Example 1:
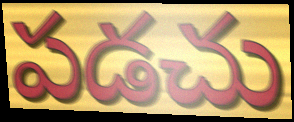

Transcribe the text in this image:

పడచు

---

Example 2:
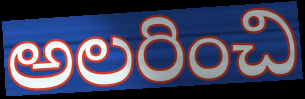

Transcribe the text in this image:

అలరించి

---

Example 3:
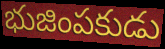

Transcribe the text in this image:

భుజింపకుడు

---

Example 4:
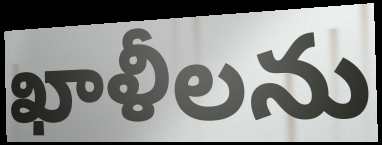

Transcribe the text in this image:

ఖాళీలను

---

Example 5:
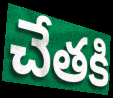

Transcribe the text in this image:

చేతకి